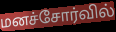
மனச்சோர்வில்